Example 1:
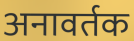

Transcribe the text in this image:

अनावर्तक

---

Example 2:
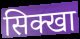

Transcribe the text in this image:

सिक्खा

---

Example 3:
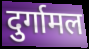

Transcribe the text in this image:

दुर्गामल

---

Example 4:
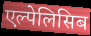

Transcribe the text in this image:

एल्पेलिसिब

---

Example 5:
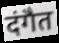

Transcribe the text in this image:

दंगैत